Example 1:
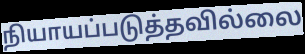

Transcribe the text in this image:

நியாயப்படுத்தவில்லை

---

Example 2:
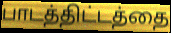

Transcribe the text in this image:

பாடத்திட்டத்தை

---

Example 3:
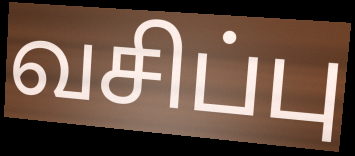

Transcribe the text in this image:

வசிப்பு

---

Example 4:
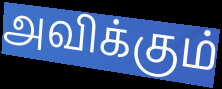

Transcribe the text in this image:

அவிக்கும்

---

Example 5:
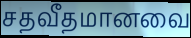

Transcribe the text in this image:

சதவீதமானவை